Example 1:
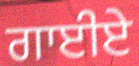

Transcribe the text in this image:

ਗਾਈਏ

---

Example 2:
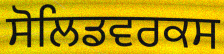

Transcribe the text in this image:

ਸੋਲਿਡਵਰਕਸ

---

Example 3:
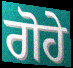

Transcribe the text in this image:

ਗੋਹੇ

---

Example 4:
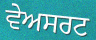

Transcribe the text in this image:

ਵੇਅਸਰਟ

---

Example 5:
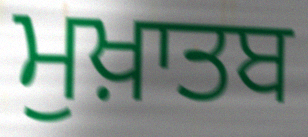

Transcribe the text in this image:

ਮੁਖ਼ਾਤਬ